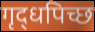
गृद्धपिच्छ